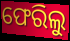
ଫେରିଲୁ